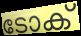
ടോക്